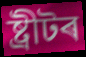
ষ্ট্ৰীটৰ